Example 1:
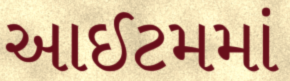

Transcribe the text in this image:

આઈટમમાં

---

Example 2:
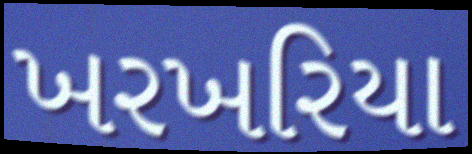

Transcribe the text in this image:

ખરખરિયા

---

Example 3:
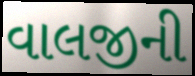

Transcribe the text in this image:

વાલજીની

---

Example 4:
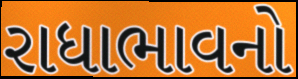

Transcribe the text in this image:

રાધાભાવનો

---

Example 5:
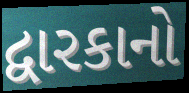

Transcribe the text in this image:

દ્વારકાનો